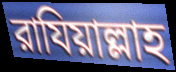
রাযিয়াল্লাহ